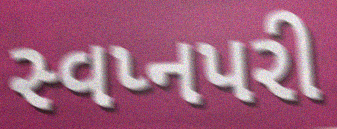
સ્વપ્નપરી